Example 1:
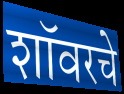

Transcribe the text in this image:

शॉवरचे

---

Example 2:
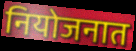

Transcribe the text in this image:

नियोजनात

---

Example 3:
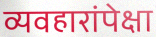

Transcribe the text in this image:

व्यवहारांपेक्षा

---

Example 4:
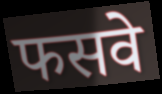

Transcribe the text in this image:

फसवे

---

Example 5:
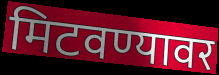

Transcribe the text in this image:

मिटवण्यावर